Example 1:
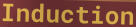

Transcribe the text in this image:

Induction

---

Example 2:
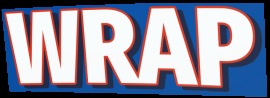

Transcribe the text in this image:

WRAP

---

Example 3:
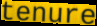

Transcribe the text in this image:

tenure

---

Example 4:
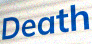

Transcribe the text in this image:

Death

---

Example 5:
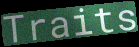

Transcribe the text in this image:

Traits